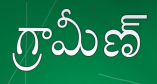
గ్రామీణ్